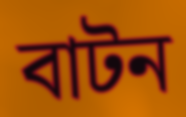
বাটন